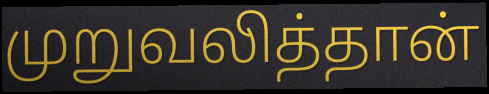
முறுவலித்தான்